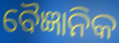
ବୈଜ୍ଞାନିକ